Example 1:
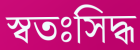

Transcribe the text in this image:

স্বতঃসিদ্ধ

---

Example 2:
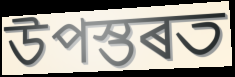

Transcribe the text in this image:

উপস্তৰত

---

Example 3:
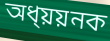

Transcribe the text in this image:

অধ্য়য়নক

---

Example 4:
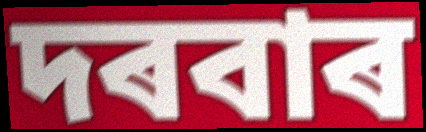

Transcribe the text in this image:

দৰবাৰ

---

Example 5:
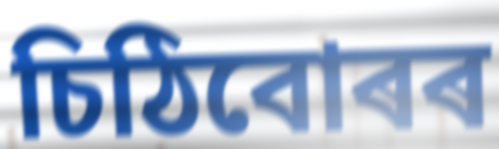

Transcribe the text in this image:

চিঠিবোৰৰ